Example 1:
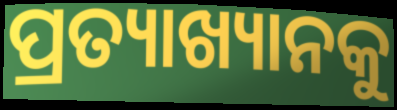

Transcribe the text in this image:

ପ୍ରତ୍ୟାଖ୍ୟାନକୁ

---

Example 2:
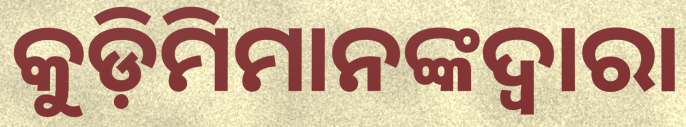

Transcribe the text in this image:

କୁଡ଼ିମିମାନଙ୍କଦ୍ୱାରା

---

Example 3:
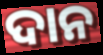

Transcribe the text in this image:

ଦାନ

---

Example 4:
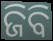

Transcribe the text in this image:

ଜିବି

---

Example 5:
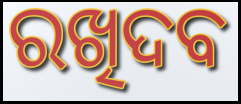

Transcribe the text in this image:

ରଖିଦବ